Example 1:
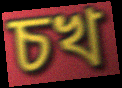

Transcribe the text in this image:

চখ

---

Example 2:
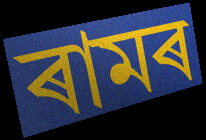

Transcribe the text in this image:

ৰামৰ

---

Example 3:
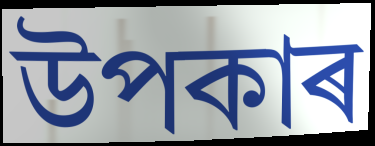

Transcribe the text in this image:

উপকাৰ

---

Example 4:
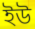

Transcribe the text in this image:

ইউ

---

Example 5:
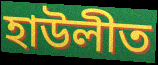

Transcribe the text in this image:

হাউলীত